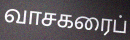
வாசகரைப்